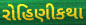
રોહિણીકથા